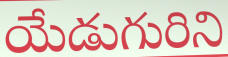
యేడుగురిని